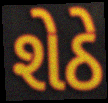
શેઠે